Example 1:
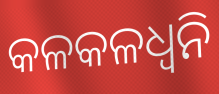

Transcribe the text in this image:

କଳକଳଧ୍ଵନି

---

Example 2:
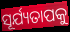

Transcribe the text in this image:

ସୂର୍ଯ୍ୟତାପକୁ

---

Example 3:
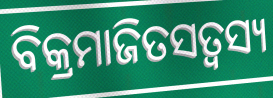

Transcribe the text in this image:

ବିକ୍ରମାଜିତସତ୍ଵସ୍ୟ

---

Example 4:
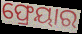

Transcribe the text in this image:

ଫ୍ରେୟାର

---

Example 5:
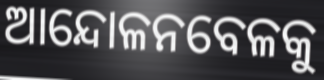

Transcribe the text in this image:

ଆନ୍ଦୋଳନବେଳକୁ